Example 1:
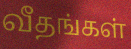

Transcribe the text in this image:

வீதங்கள்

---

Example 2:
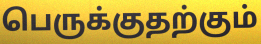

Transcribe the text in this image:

பெருக்குதற்கும்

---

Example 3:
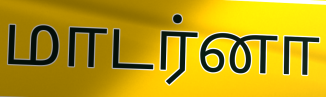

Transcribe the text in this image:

மாடர்னா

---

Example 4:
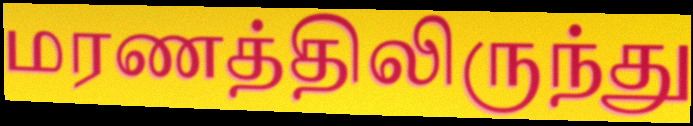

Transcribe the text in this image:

மரணத்திலிருந்து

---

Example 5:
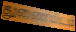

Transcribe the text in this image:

துணையிடம்